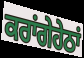
ਕਰਾਂਗੇਹੇਠਾਂ